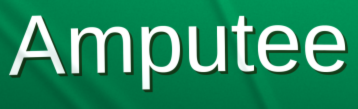
Amputee